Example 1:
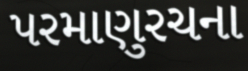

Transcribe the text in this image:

પરમાણુરચના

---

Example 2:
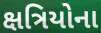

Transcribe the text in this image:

ક્ષત્રિયોના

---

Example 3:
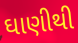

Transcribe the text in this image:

ઘાણીથી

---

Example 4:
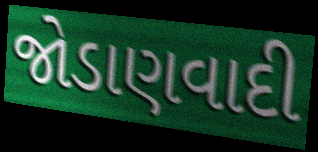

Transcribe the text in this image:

જોડાણવાદી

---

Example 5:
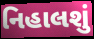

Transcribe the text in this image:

નિહાલશું